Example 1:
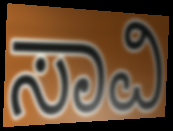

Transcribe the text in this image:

ಸಾವಿ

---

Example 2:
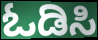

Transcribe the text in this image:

ಓಡಿಸಿ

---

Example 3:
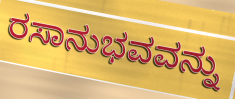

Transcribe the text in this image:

ರಸಾನುಭವವನ್ನು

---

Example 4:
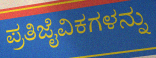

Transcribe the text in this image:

ಪ್ರತಿಜೈವಿಕಗಳನ್ನು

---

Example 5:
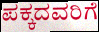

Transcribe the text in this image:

ಪಕ್ಕದವರಿಗೆ